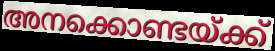
അനക്കൊണ്ടയ്ക്ക്